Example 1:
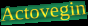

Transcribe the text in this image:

Actovegin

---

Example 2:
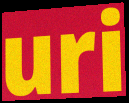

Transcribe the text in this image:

uri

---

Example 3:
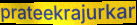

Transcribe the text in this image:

prateekrajurkar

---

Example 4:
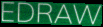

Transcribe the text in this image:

EDRAW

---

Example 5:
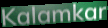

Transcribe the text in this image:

Kalamkar